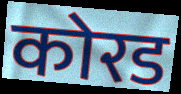
कोरड